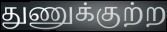
துணுக்குற்ற